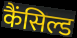
कैंसिल्ड